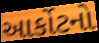
આર્કોટનો